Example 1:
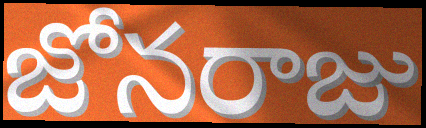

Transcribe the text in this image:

జోనరాజు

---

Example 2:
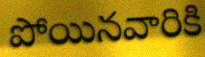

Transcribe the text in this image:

పోయినవారికి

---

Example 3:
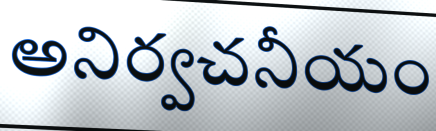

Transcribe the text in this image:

అనిర్వచనీయం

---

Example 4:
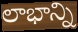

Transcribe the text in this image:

లాభాన్ని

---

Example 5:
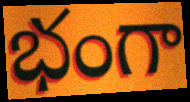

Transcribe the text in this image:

భంగా